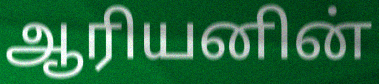
ஆரியனின்